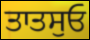
ਤਾਤਸੁਓ